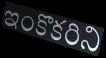
ఇంకొకరిని